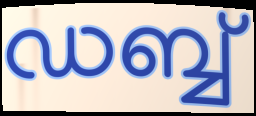
ഡബ്ബ്